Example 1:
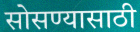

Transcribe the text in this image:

सोसण्यासाठी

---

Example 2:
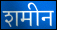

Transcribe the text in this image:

शमीन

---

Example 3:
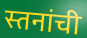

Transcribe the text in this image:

स्तनांची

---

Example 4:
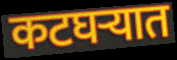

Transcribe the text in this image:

कटघऱ्यात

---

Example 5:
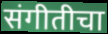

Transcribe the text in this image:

संगीतीचा